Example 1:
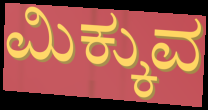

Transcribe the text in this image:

ಮಿಕ್ಕುವ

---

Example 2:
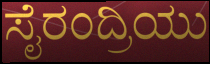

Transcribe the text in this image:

ಸೈರಂದ್ರಿಯು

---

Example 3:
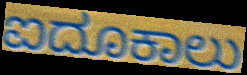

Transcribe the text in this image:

ಐದೂಕಾಲು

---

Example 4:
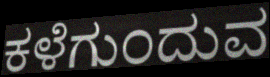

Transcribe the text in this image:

ಕಳೆಗುಂದುವ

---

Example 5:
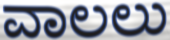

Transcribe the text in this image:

ವಾಲಲು